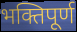
भक्तिपूर्ण